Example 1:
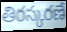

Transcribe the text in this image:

తిరస్కరణే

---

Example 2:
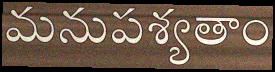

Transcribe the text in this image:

మనుపశ్యతాం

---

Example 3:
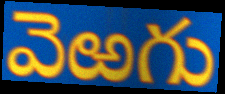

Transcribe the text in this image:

వెఱగు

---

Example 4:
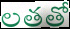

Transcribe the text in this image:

లతతో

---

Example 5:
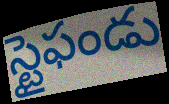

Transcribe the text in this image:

స్టైఫండు